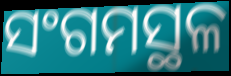
ସଂଗମସ୍ଥଳ